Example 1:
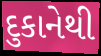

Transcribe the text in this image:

દુકાનેથી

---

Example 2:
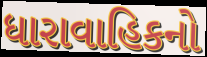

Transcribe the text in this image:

ધારાવાહિકનો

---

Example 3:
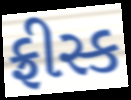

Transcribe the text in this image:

ફ્રીસ્ક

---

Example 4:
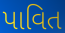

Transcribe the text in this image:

પાવિત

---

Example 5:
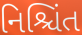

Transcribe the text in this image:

નિશ્ચિંત